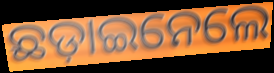
ଛଡ଼ାଇନେଲେ